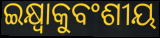
ଇକ୍ଷ୍ୱାକୁବଂଶୀୟ